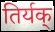
तिर्यक्